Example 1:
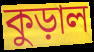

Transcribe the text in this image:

কুড়াল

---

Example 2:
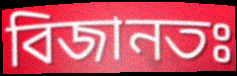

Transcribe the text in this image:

বিজানতঃ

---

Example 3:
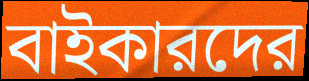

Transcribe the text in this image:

বাইকারদের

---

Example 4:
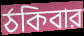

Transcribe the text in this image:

ঠকিবার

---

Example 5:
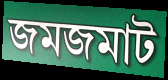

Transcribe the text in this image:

জমজমাট